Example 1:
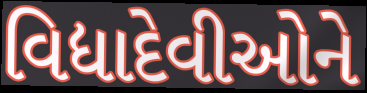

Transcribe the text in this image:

વિદ્યાદેવીઓને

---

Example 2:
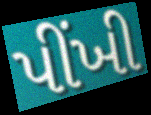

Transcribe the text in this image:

પીંખી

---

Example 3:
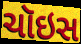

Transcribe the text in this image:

ચૉઇસ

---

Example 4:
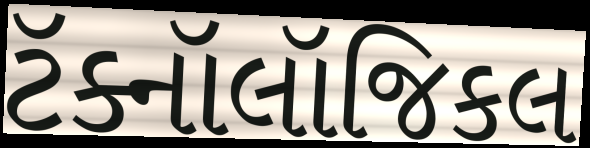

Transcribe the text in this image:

ટૅક્નૉલૉજિકલ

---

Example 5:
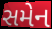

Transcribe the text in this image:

સમેન